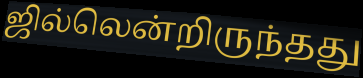
ஜில்லென்றிருந்தது